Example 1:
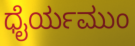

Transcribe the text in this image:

ಧೈರ್ಯಮುಂ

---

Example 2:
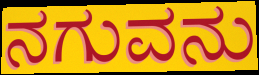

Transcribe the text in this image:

ನಗುವನು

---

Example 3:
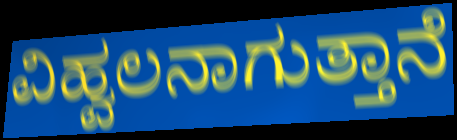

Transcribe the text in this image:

ವಿಹ್ವಲನಾಗುತ್ತಾನೆ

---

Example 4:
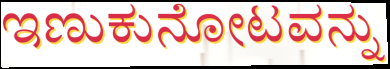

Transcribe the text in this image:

ಇಣುಕುನೋಟವನ್ನು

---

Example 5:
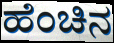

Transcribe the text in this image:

ಹೆಂಚಿನ